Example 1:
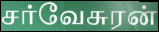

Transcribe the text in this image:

சர்வேசுரன்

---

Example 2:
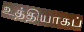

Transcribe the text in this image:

உத்தியாகப்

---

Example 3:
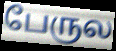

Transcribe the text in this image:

பேருல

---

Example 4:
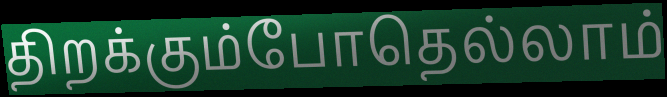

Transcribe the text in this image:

திறக்கும்போதெல்லாம்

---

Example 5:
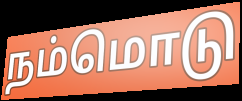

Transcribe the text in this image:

நம்மொடு